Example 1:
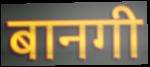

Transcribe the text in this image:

बानगी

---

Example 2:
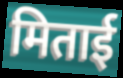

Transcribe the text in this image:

मिताई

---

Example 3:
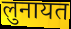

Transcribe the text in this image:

लुनायत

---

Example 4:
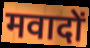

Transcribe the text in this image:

मवादों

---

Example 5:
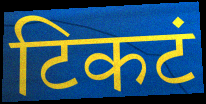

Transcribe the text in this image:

टिकटं